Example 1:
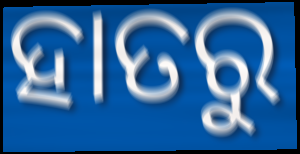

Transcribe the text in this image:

ହାତରୁ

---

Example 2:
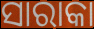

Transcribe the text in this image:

ସାରାକା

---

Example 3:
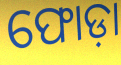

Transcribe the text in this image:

ଫୋଡ଼ା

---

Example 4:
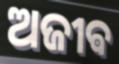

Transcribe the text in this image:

ଅଜୀଵ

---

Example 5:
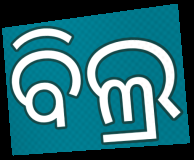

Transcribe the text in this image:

ବିଲ୍ର